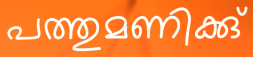
പത്തുമണിക്കു്